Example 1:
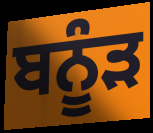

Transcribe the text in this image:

ਬਨੂੰੜ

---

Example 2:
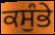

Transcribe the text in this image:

ਕਸੁੰਭੇ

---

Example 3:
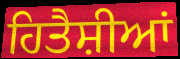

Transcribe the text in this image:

ਹਿਤੈਸ਼ੀਆਂ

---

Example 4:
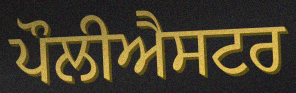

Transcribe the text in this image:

ਪੌਲੀਐਸਟਰ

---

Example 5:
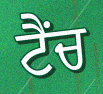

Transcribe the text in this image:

ਟੈਂਚ